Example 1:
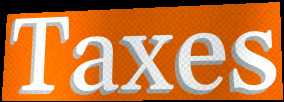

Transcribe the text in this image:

Taxes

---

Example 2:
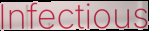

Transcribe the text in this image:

Infectious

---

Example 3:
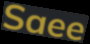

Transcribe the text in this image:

Saee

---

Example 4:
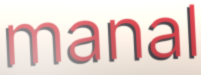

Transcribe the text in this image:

manal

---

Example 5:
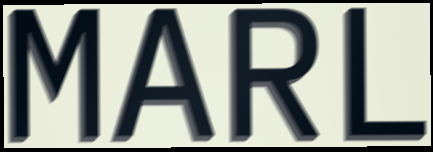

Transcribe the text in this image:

MARL